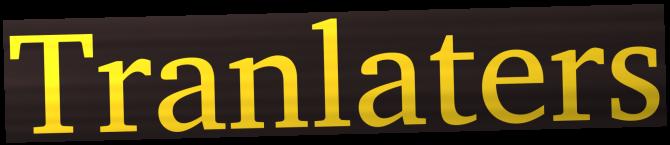
Tranlaters